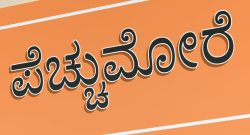
ಪೆಚ್ಚುಮೋರೆ